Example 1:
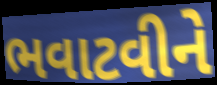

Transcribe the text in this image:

ભવાટવીને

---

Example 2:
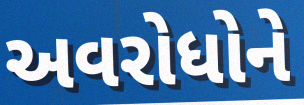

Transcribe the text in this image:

અવરોધોને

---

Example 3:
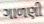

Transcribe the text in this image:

ગાળણી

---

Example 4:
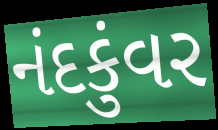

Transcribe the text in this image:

નંદકુંવર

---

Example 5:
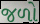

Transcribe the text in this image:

જળો